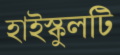
হাইস্কুলটি